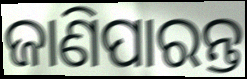
ଜାଣିପାରନ୍ତ